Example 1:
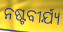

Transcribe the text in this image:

ନଷ୍ଟବୀର୍ଯ୍ୟ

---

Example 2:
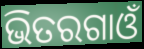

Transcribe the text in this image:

ଭିତରଗାଓଁ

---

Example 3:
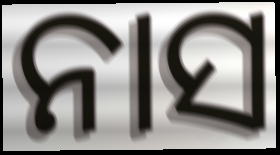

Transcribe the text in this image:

ନାସ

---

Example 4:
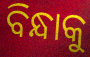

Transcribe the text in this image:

ବିନ୍ଧାକୁ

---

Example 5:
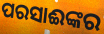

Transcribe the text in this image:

ପରସାଈଙ୍କର